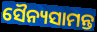
ସୈନ୍ୟସାମନ୍ତ